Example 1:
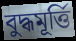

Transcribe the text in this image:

বুদ্ধমূর্ত্তি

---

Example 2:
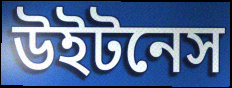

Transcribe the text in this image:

উইটনেস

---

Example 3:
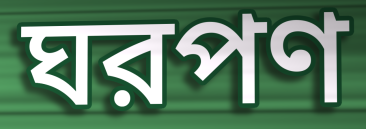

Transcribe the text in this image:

ঘরপণ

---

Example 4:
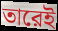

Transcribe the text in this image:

তারেই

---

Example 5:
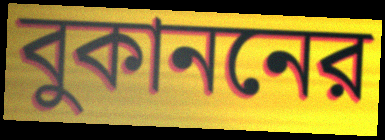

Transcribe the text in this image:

বুকাননের